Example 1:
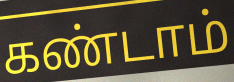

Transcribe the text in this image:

கண்டாம்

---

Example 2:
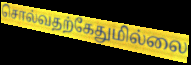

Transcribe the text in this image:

சொல்வதற்கேதுமில்லை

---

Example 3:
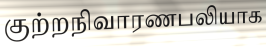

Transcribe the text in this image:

குற்றநிவாரணபலியாக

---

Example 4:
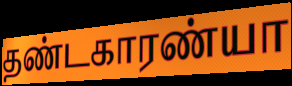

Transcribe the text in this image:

தண்டகாரண்யா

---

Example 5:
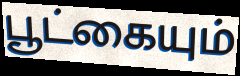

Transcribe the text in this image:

பூட்கையும்